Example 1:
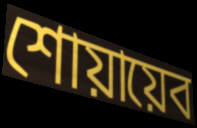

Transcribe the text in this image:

শোয়ায়েব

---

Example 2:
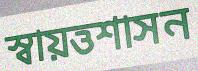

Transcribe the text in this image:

স্বায়ত্তশাসন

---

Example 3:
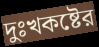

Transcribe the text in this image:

দুঃখকষ্টের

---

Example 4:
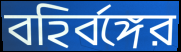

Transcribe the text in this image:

বহির্বঙ্গের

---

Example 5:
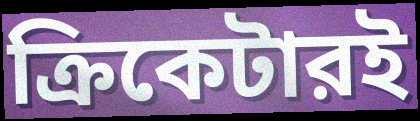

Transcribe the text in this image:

ক্রিকেটারই